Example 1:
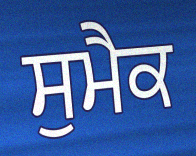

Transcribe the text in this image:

ਸੁਮੈਕ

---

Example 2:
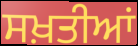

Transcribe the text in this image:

ਸਖ਼ਤੀਆਂ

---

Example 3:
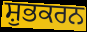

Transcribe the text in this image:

ਸ਼ੁਭਕਰਨ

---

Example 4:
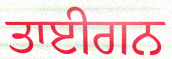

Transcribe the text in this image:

ਤਾਈਗਨ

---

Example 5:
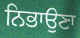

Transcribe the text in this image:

ਨਿਭਾਉਣਾ